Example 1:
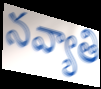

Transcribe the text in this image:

నవ్యాతి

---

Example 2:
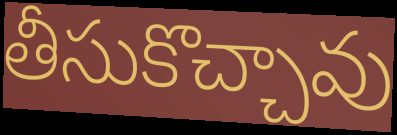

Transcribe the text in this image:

తీసుకొచ్చావు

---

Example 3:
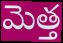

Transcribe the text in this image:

మెత్త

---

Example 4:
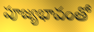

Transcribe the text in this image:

పూజ్యభావంతో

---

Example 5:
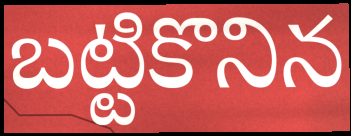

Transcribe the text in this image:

బట్టికొనిన